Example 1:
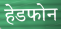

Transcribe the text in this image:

हेडफोन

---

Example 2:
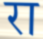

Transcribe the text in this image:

रा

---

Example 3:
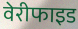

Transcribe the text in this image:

वेरीफाइड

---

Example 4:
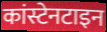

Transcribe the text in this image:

कांस्टेनटाइन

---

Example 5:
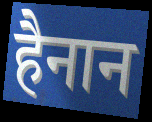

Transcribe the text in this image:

हैनान